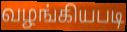
வழங்கியபடி